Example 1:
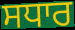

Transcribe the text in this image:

ਸਧਾਰ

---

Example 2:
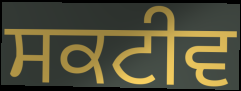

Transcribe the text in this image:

ਸਕਟੀਵ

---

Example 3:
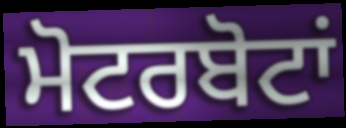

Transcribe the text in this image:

ਮੋਟਰਬੋਟਾਂ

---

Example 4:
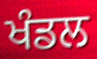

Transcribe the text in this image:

ਖੰਡਲ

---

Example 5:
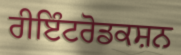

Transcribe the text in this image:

ਰੀਇੰਟਰੋਡਕਸ਼ਨ